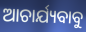
ଆଚାର୍ଯ୍ୟବାବୁ